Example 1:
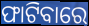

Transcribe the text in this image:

ଫାଟିବାରେ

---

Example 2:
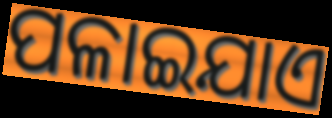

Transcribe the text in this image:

ପଳାଇଯାଏ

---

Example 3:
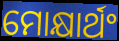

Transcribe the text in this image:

ମୋକ୍ଷାର୍ଥଂ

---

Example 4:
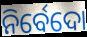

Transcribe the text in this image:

ନିର୍ବେଦୋ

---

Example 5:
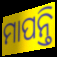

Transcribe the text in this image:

ମାପନ୍ତି